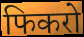
फिकरो